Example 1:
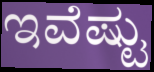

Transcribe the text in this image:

ಇವೆಷ್ಟು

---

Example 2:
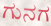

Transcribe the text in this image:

ಗುನಗ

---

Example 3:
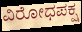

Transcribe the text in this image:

ವಿರೋಧಪಕ್ಷ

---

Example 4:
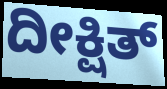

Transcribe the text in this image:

ದೀಕ್ಷಿತ್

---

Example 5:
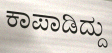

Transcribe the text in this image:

ಕಾಪಾಡಿದ್ದು